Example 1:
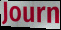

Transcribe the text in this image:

Journ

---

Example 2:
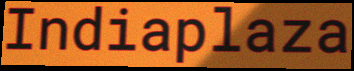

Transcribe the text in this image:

Indiaplaza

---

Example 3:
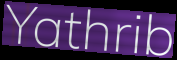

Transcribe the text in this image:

Yathrib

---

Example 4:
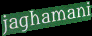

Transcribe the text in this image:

jaghamani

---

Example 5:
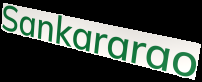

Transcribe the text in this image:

Sankararao